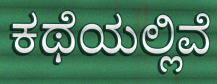
ಕಥೆಯಲ್ಲಿವೆ